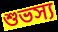
শুভস্য